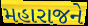
મહારાજને